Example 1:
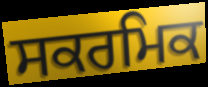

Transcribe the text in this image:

ਸਕਰਮਿਕ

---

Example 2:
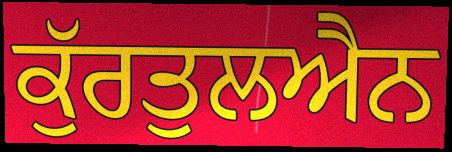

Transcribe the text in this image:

ਕੁੱਰਤੁਲਐਨ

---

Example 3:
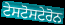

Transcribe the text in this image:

ਟੇਸਟੋਸਟੇਰੋਨ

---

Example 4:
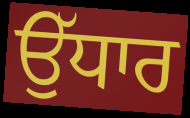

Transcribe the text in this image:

ਉੱਧਾਰ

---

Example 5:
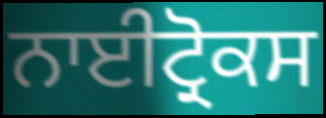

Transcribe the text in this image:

ਨਾਈਟ੍ਰੋਕਸ